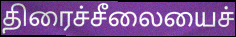
திரைச்சீலையைச்